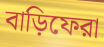
বাড়িফেরা